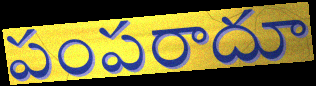
పంపరాదూ